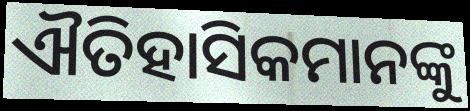
ଐତିହାସିକମାନଙ୍କୁ